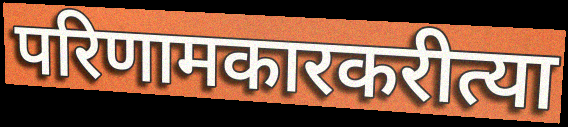
परिणामकारकरीत्या